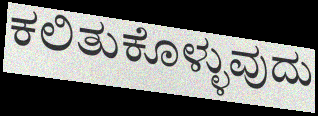
ಕಲಿತುಕೊಳ್ಳುವುದು